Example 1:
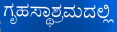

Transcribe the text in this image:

ಗೃಹಸ್ಥಾಶ್ರಮದಲ್ಲಿ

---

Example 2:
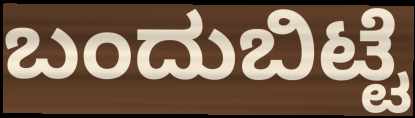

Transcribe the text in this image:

ಬಂದುಬಿಟ್ಟೆ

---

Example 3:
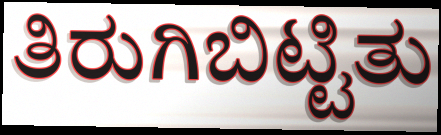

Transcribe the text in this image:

ತಿರುಗಿಬಿಟ್ಟಿತು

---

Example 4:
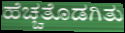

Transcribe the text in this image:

ಹೆಚ್ಚತೊಡಗಿತು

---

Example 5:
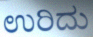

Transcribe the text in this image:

ಉರಿದು